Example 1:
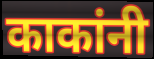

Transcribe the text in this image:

काकांनी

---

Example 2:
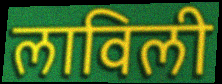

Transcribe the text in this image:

लाविली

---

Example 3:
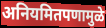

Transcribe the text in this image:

अनियमितपणामुळे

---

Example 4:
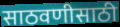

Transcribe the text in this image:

साठवणीसाठी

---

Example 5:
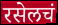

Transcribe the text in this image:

रसेलचं